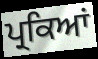
ਪ੍ਰਕਿਆਂ